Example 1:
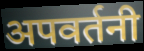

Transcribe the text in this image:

अपवर्तनी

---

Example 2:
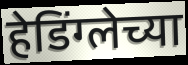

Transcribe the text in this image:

हेडिंग्लेच्या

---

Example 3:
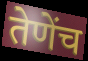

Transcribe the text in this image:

तेणेंच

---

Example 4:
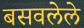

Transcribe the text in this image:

बसवलेले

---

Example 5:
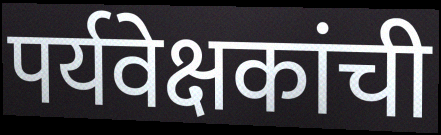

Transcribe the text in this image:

पर्यवेक्षकांची